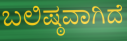
ಬಲಿಷ್ಠವಾಗಿದೆ